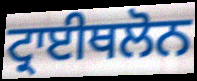
ਟ੍ਰਾਈਥਲੋਨ